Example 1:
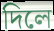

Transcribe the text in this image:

দিলে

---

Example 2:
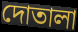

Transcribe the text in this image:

দোতালা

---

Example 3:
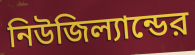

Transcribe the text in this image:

নিউজিল্যান্ডের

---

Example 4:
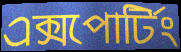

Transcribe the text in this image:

এক্সপোর্টিং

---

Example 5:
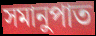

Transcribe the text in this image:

সমানুপাত